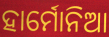
ହାର୍ମୋନିଆ